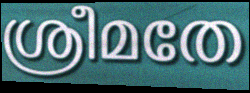
ശ്രീമതേ